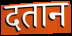
दतान